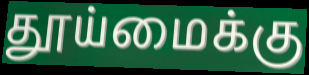
தூய்மைக்கு